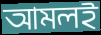
আমলই